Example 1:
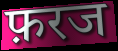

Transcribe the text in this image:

फ़रज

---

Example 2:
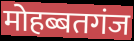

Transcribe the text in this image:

मोहब्बतगंज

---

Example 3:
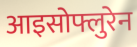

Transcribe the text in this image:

आइसोफ्लुरेन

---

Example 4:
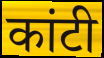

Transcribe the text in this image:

कांटी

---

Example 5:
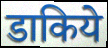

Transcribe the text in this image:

डाकिये